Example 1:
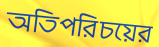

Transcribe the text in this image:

অতিপরিচয়ের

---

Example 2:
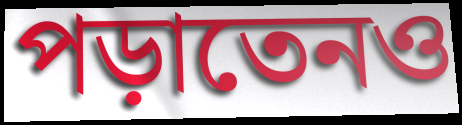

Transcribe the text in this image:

পড়াতেনও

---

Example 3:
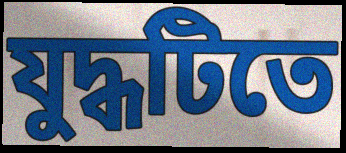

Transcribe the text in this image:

যুদ্ধটিতে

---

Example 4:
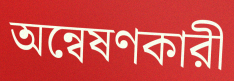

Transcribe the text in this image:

অন্বেষণকারী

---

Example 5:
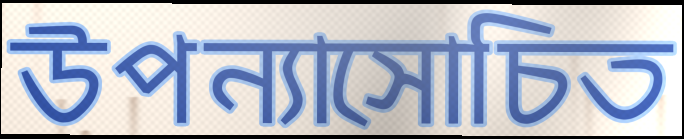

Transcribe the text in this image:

উপন্যাসোচিত